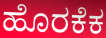
ಹೊರಕೆಕ